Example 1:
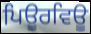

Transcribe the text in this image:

ਪਿਊਰਵਿਊ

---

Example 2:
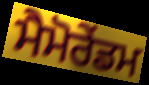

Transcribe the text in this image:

ਮੈਮੋਰੇਂਡਮ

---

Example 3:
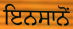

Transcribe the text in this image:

ਇਨਸਾਨੋਂ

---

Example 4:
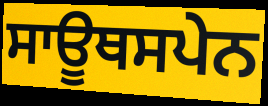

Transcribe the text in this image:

ਸਾਊਥਸਪੇਨ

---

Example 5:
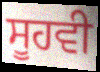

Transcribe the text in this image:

ਸੂਹਵੀ